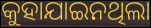
କୁହାଯାଇନଥିଲା